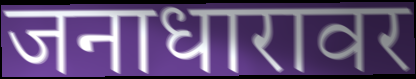
जनाधारावर